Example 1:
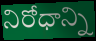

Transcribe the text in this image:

నిరోధాన్ని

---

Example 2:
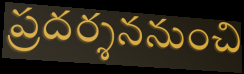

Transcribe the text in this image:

ప్రదర్శననుంచి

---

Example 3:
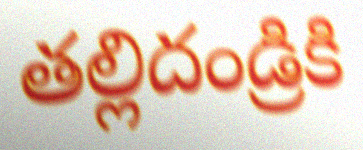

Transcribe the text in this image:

తల్లిదండ్రికి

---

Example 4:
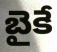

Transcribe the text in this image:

బైకే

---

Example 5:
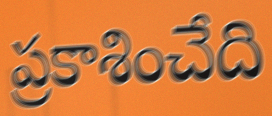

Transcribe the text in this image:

ప్రకాశించేది